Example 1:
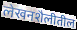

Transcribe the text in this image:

लेखनशैलीतील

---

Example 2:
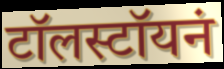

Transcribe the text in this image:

टॉलस्टॉयनं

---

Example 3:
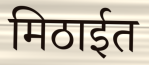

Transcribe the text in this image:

मिठाईत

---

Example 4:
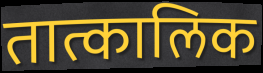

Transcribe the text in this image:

तात्कालिक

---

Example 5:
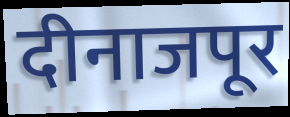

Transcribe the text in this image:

दीनाजपूर